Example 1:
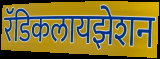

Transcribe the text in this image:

रॅडिकलायझेशन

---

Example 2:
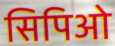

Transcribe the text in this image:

सिपिओ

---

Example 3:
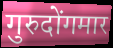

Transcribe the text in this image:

गुरुदोंगमार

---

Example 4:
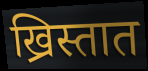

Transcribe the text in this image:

ख्रिस्तात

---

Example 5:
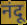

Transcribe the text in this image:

नंदू